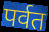
पर्वत